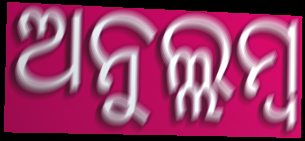
ଅନୁଲ୍ଲମ୍ବ